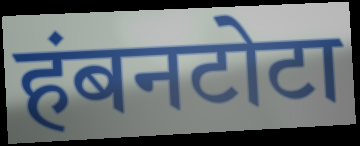
हंबनटोटा